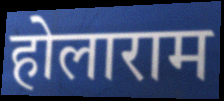
होलाराम